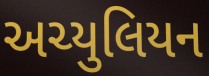
અચ્યુલિયન